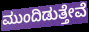
ಮುಂದಿಡುತ್ತೇವೆ